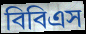
বিবিএস